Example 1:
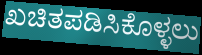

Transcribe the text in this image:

ಖಚಿತಪಡಿಸಿಕೊಳ್ಳಲು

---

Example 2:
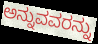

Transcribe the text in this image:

ಅನ್ನುವವರನ್ನು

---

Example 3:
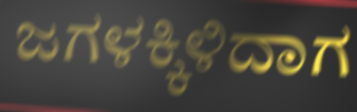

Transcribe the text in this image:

ಜಗಳಕ್ಕಿಳಿದಾಗ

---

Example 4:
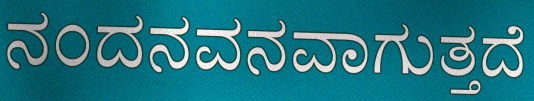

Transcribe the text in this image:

ನಂದನವನವಾಗುತ್ತದೆ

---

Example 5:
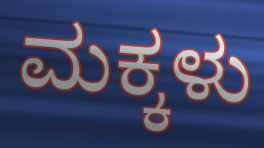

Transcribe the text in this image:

ಮಕ್ಕಳು